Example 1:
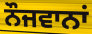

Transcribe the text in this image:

ਨੌਜਵਾਨਾਂ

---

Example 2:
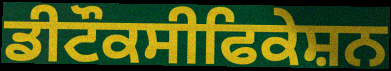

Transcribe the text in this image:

ਡੀਟੌਕਸੀਫਿਕੇਸ਼ਨ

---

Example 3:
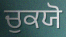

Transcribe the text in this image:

ਚੁਕਯੋ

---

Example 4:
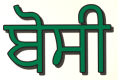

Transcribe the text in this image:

ਬੋਸੀ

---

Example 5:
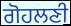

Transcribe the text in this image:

ਗੋਹਲਣੀ